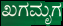
ಖಗಮೃಗ